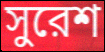
সুরেশ